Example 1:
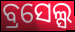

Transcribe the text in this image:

ବ୍ରସେଲ୍ସ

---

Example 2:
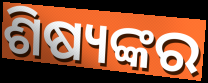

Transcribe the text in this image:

ଶିଷ୍ୟଙ୍କର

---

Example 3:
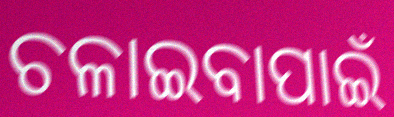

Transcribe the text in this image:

ଚଳାଇବାପାଇଁ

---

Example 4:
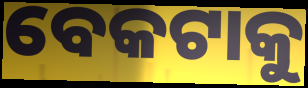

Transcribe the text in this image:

ବେକଟାକୁ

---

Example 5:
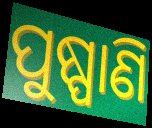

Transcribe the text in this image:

ପୁଷ୍ପାଣି